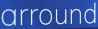
arround